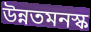
উন্নতমনস্ক